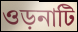
ওড়নাটি